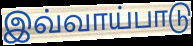
இவ்வாய்பாடு